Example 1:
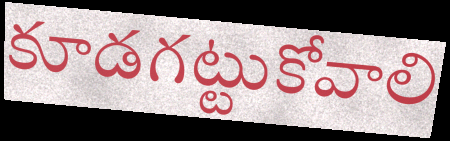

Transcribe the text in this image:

కూడగట్టుకోవాలి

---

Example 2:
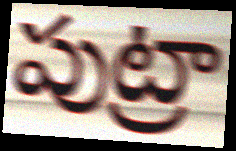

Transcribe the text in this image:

పుట్రా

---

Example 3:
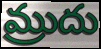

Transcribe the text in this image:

మ్రుదు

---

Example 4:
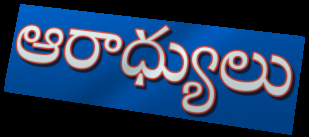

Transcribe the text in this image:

ఆరాధ్యులు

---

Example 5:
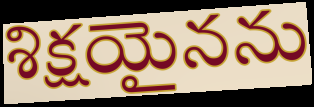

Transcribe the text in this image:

శిక్షయైనను